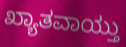
ಖ್ಯಾತವಾಯ್ತು